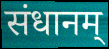
संधानम्